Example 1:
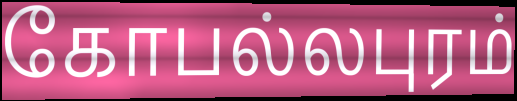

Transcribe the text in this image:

கோபல்லபுரம்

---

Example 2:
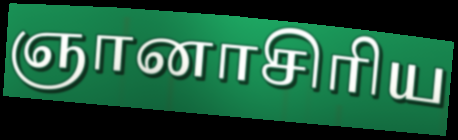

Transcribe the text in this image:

ஞானாசிரிய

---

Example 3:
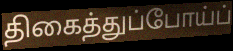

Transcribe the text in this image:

திகைத்துப்போய்ப்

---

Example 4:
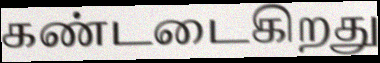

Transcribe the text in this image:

கண்டடைகிறது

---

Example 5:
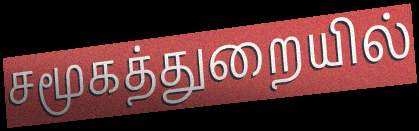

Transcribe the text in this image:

சமூகத்துறையில்